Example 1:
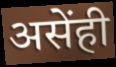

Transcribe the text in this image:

असेंही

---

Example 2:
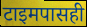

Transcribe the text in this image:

टाइमपासही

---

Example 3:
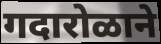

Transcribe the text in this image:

गदारोळाने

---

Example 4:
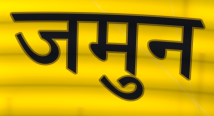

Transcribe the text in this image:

जमुन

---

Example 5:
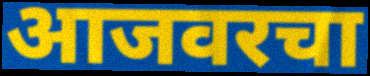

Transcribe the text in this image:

आजवरचा